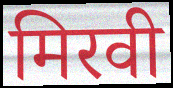
मिरवी